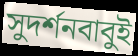
সুদর্শনবাবুই